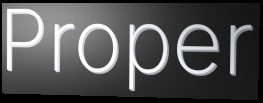
Proper